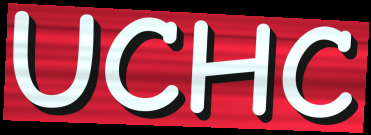
UCHC